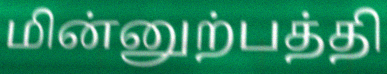
மின்னுற்பத்தி